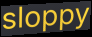
sloppy